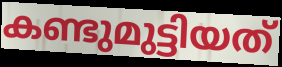
കണ്ടുമുട്ടിയത്